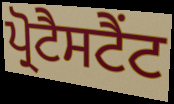
ਪ੍ਰੋਟੈਸਟੈਂਟ